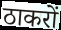
ठाकरों